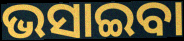
ଭସାଇବା